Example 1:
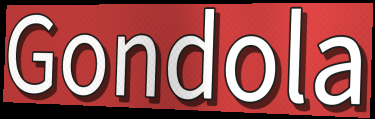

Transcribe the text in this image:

Gondola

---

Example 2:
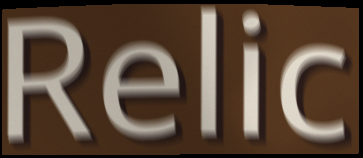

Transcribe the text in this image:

Relic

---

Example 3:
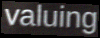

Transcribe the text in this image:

valuing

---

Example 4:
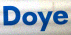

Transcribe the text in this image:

Doye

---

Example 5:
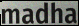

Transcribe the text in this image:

madha